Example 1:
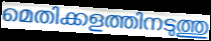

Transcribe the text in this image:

മെതിക്കളത്തിനടുത്തു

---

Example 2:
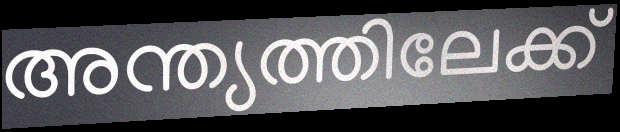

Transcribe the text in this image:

അന്ത്യത്തിലേക്ക്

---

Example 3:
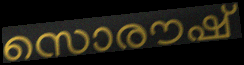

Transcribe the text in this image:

സൊരൗഷ്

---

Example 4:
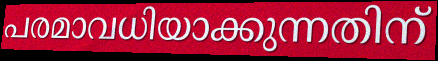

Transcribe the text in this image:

പരമാവധിയാക്കുന്നതിന്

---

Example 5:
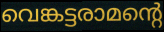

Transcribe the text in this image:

വെങ്കട്ടരാമന്റെ